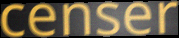
censer